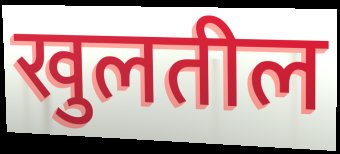
खुलतील